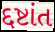
દ્દષ્ટાંત